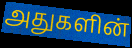
அதுகளின்